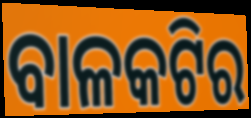
ବାଳକଟିର